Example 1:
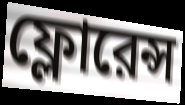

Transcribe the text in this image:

ফ্লোরেন্স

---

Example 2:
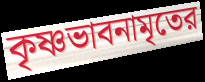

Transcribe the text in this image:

কৃষ্ণভাবনামৃতের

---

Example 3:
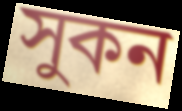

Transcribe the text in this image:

সুকন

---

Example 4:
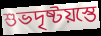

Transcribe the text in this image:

শুভদৃষ্টয়স্তে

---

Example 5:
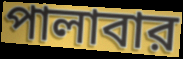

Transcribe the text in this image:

পালাবার